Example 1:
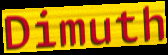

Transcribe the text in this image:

Dimuth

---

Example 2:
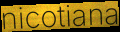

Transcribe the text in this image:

nicotiana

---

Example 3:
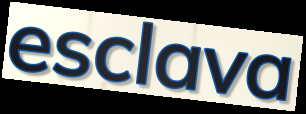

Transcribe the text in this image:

esclava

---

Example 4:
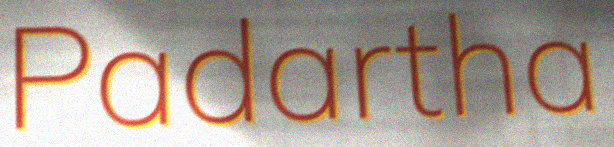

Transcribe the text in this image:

Padartha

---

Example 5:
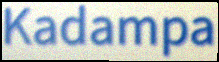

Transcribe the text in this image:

Kadampa